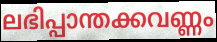
ലഭിപ്പാന്തക്കവണ്ണം